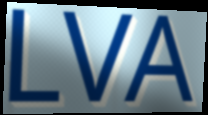
LVA